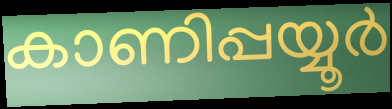
കാണിപ്പയ്യൂർ